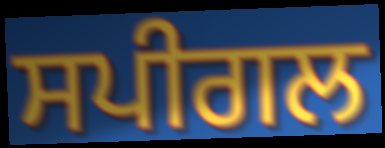
ਸਪੀਗਲ